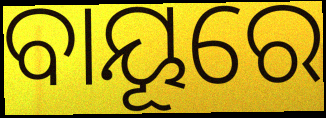
ବାୟୂରେ